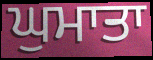
ਘੁਮਾਤਾ